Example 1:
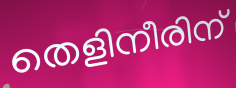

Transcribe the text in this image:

തെളിനീരിന്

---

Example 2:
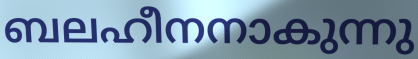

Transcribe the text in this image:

ബലഹീനനാകുന്നു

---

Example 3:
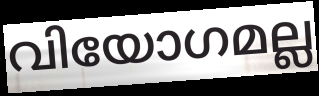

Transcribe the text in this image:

വിയോഗമല്ല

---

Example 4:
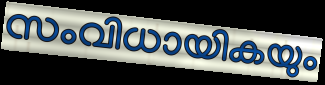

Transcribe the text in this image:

സംവിധായികയും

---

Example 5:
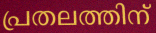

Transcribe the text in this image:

പ്രതലത്തിന്